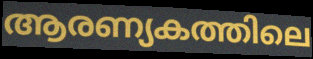
ആരണ്യകത്തിലെ